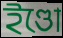
ইণ্ডো